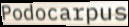
Podocarpus